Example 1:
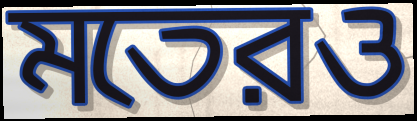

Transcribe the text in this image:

মতেরও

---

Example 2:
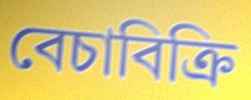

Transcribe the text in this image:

বেচাবিক্রি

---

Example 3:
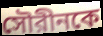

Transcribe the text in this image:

সৌরীনকে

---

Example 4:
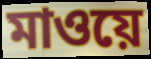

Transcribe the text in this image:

মাওয়ে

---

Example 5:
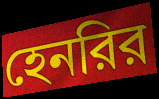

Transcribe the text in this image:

হেনরির